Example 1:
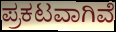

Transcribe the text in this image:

ಪ್ರಕಟವಾಗಿವೆ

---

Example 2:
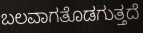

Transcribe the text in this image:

ಬಲವಾಗತೊಡಗುತ್ತದೆ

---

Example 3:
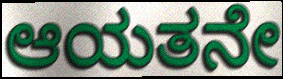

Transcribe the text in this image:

ಆಯತನೇ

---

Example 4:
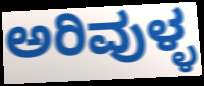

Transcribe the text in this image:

ಅರಿವುಳ್ಳ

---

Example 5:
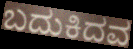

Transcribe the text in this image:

ಬದುಕಿದವ